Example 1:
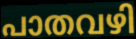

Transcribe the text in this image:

പാതവഴി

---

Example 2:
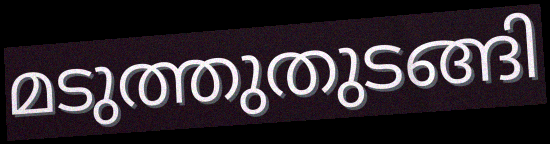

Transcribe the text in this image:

മടുത്തുതുടങ്ങി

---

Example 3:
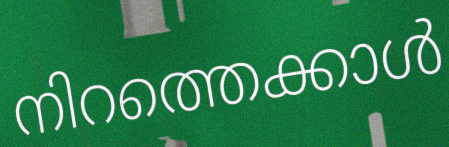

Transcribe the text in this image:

നിറത്തെക്കാൾ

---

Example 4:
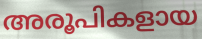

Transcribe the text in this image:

അരൂപികളായ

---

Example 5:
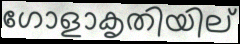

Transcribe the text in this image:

ഗോളാകൃതിയില്